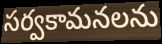
సర్వకామనలను